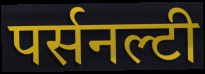
पर्सनल्टी